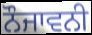
ਨੌਜਾਵਨੀ